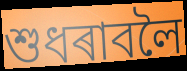
শুধৰাবলৈ